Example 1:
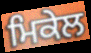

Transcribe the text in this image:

ਮਿਕੇਲ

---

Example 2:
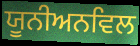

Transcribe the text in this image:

ਯੂਨੀਅਨਵਿਲ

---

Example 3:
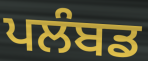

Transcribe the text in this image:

ਪਲੰਬਡ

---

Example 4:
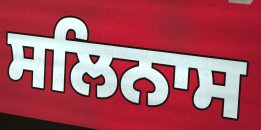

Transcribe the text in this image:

ਸਲਿਨਾਸ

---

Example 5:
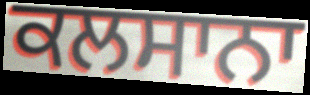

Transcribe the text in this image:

ਕਲਸਾਨਾ